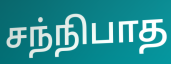
சந்நிபாத